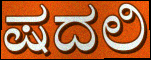
ಷದಲಿ